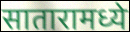
सातारामध्ये